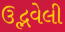
ઉદ્ભવેલી